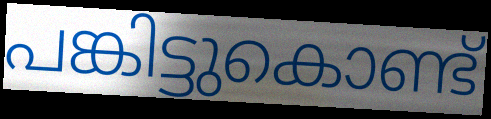
പങ്കിട്ടുകൊണ്ട്